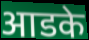
आडके